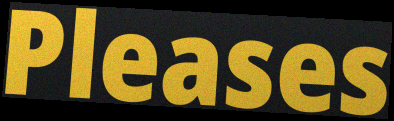
Pleases